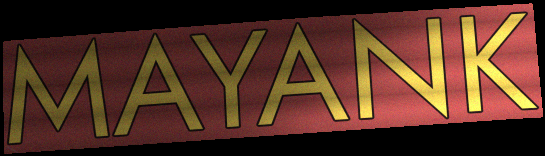
MAYANK